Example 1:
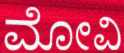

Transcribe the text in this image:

ಮೋವಿ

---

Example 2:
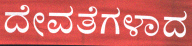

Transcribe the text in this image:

ದೇವತೆಗಳಾದ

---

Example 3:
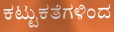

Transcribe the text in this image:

ಕಟ್ಟುಕತೆಗಳಿಂದ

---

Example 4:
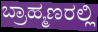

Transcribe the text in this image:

ಬ್ರಾಹ್ಮಣರಲ್ಲಿ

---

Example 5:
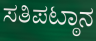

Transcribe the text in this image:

ಸತಿಪಟ್ಠಾನ